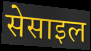
सेसाइल